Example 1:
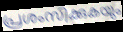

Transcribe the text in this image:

പ്രശംസിക്കുകയും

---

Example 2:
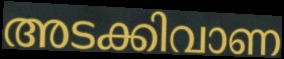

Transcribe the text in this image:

അടക്കിവാണ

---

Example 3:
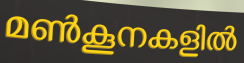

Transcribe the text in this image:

മൺകൂനകളിൽ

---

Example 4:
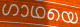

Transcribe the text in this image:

ഗാഥയെ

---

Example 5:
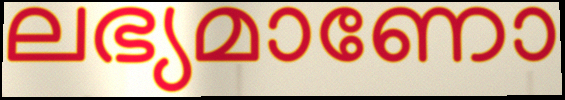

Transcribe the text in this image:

ലഭ്യമാണോ